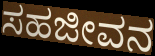
ಸಹಜೀವನ